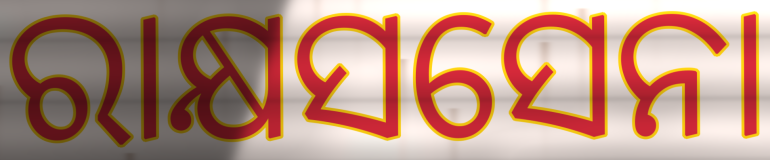
ରାକ୍ଷସସେନା